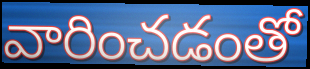
వారించడంతో